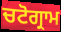
ਚਟੋਗ੍ਰਾਮ